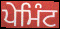
ਪੇਮਿੰਟ